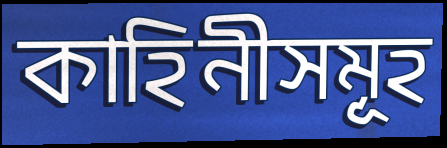
কাহিনীসমূহ